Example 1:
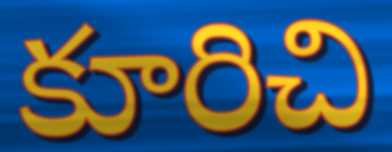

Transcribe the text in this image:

కూరిచి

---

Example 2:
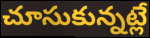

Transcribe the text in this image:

చూసుకున్నట్లే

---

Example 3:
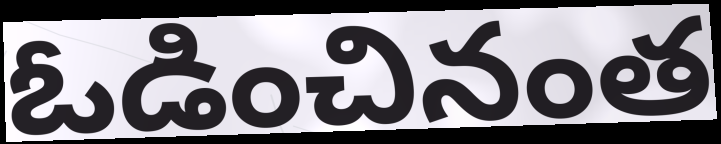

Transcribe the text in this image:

ఓడించినంత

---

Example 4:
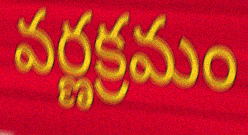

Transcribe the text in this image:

వర్ణక్రమం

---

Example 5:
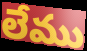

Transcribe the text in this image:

లేము